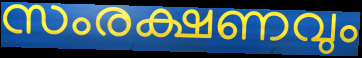
സംരക്ഷണവും